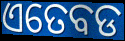
ଏତେବଡ